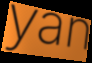
yan